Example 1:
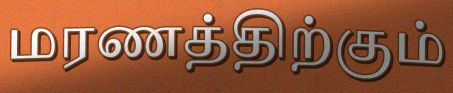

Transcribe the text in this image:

மரணத்திற்கும்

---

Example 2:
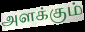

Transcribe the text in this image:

அளக்கும்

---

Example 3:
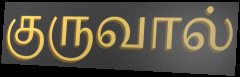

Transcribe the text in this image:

குருவால்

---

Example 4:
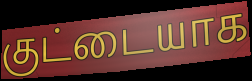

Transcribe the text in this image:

குட்டையாக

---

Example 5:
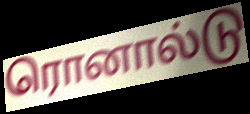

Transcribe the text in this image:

ரொனால்டு